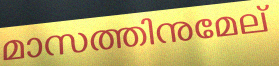
മാസത്തിനുമേല്